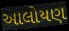
આલોયણ